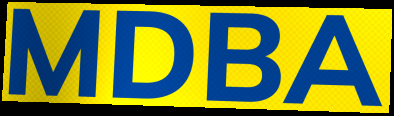
MDBA